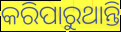
କରିପାରୁଥାନ୍ତି